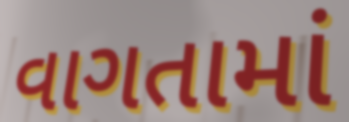
વાગતામાં